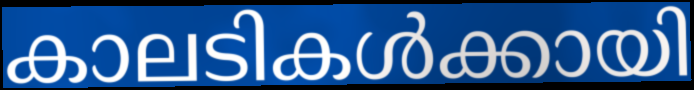
കാലടികൾക്കായി